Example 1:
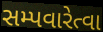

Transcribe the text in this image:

સમ્પવારેત્વા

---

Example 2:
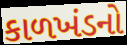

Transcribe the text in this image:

કાળખંડનો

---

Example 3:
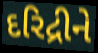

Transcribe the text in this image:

દરિદ્રીને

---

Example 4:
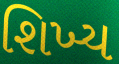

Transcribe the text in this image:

શિખ્ય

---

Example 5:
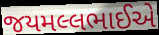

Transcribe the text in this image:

જયમલ્લભાઈએ